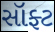
સૉફ્ટ